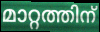
മാറ്റത്തിന്